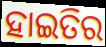
ହାଇତିର